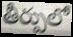
తీర్పులో